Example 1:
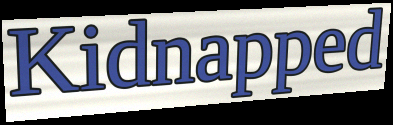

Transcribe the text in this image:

Kidnapped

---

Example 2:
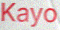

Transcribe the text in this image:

Kayo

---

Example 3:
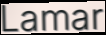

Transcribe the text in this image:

Lamar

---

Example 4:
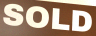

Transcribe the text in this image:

SOLD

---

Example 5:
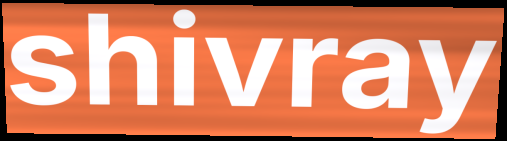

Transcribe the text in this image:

shivray